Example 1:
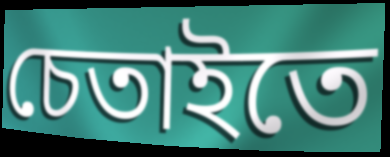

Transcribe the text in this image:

চেতাইতে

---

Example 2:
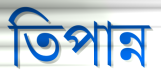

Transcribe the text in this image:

তিপান্ন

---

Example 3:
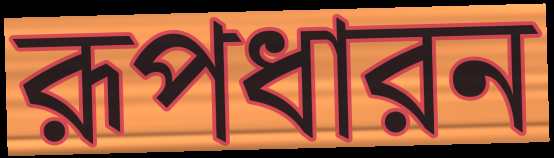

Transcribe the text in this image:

রূপধারন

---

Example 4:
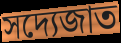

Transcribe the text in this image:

সদ্যেজাত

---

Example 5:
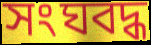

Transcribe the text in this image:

সংঘবদ্ধ